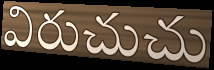
విరుచుచు